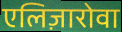
एलिज़ारोवा